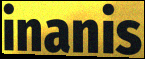
inanis